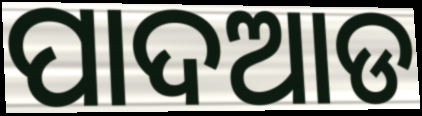
ପାଦଆଡ